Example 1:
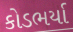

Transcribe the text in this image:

કોડભર્યા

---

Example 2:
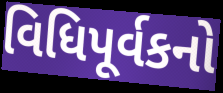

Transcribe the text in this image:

વિધિપૂર્વકનો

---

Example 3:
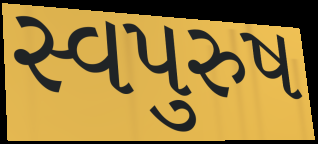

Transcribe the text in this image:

સ્વપુરુષ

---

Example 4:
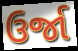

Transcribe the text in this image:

ઉર્જા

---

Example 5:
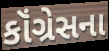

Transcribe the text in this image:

કૉંગ્રેસના